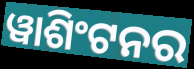
ୱାଶିଂଟନର